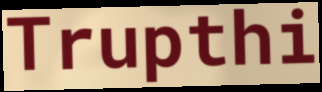
Trupthi